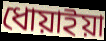
ধোয়াইয়া